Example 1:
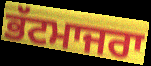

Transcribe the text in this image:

ਭੱਟਮਾਜਰਾ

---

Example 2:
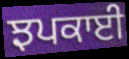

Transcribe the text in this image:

ਝਪਕਾਈ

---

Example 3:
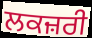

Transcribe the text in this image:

ਲਕਜ਼ਰੀ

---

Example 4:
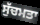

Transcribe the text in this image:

ਸੁੱਚਮਤਾ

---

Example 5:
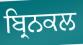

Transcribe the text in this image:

ਬ੍ਰਿਨਕਲ